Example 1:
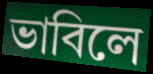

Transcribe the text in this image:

ভাবিলে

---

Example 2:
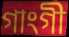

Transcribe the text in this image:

গাংগী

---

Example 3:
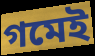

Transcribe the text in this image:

গমেই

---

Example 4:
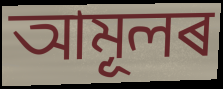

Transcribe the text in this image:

আমূলৰ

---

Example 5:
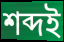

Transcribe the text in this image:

শব্দই